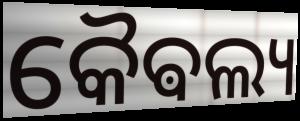
କୈଵଲ୍ୟ